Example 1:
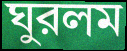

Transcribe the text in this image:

ঘুরলম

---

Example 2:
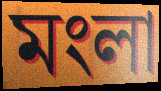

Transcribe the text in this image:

মংলা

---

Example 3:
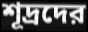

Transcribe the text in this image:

শূদ্রদের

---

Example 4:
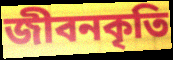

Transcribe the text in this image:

জীবনকৃতি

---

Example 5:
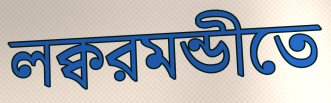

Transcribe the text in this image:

লক্বরমন্ডীতে